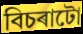
বিচৰাটো